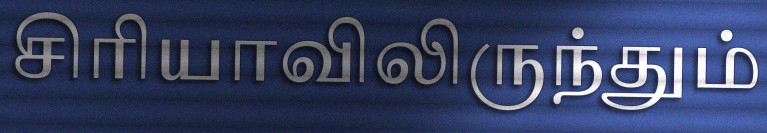
சிரியாவிலிருந்தும்